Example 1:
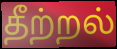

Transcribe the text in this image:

தீற்றல்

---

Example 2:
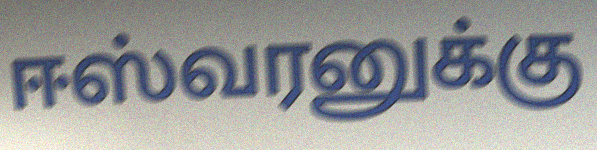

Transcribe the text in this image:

ஈஸ்வரனுக்கு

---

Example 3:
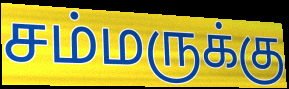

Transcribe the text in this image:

சம்மருக்கு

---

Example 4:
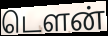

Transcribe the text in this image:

டௌன்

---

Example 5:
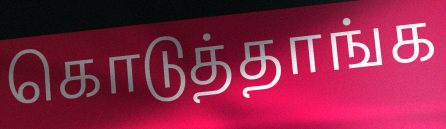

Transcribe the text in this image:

கொடுத்தாங்க